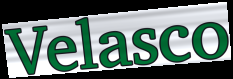
Velasco